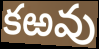
కఱవు